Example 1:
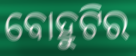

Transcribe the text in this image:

ବୋହୁଟିର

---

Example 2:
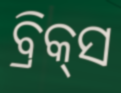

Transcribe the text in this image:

ବ୍ରିକ୍‌ସ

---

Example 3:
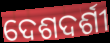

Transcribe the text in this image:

ଦେଶଦର୍ଶୀ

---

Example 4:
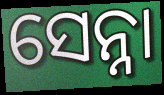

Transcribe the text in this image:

ସେନ୍ନା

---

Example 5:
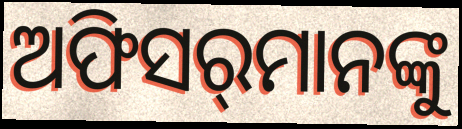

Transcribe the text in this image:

ଅଫିସର୍‌ମାନଙ୍କୁ